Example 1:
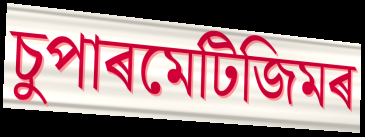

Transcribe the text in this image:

চুপাৰমেটিজিমৰ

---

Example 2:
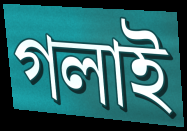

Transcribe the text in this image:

গলাই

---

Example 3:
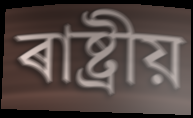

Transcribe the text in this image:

ৰাষ্ট্ৰীয়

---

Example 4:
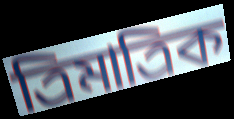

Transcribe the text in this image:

ত্ৰিমাত্ৰিক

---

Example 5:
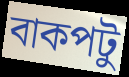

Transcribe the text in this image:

বাকপটু